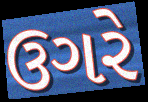
ઉગરે